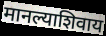
मानल्याशिवाय